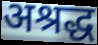
अश्रद्ध